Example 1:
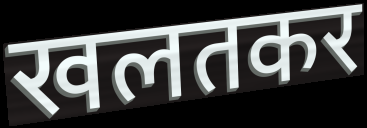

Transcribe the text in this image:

खलतकर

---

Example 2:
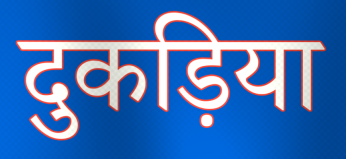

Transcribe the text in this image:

दुकड़िया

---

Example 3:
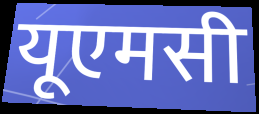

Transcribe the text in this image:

यूएमसी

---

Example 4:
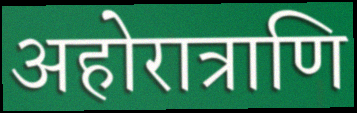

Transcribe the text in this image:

अहोरात्राणि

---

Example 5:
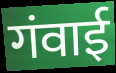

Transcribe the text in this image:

गंवाई